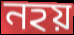
নহয়